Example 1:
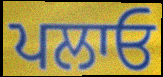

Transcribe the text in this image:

ਪਲਾਓ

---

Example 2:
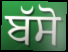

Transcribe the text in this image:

ਬੱਸੋ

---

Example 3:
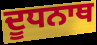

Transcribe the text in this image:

ਦੂਧਨਾਥ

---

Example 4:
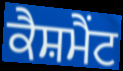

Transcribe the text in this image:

ਕੈਸ਼ਮੈਂਟ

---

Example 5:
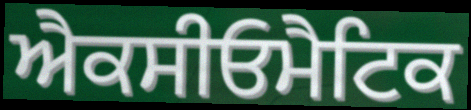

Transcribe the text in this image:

ਐਕਸੀਓਮੈਟਿਕ